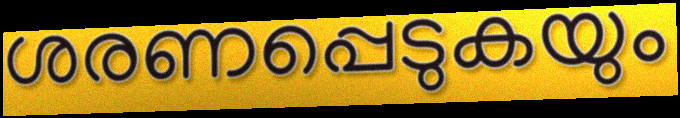
ശരണപ്പെടുകയും